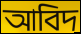
আবিদ